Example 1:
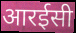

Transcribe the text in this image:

आरईसी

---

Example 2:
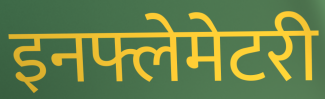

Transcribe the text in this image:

इनफ्लेमेटरी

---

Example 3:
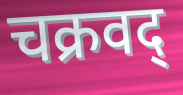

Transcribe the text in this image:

चक्रवद्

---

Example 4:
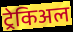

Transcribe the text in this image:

ट्रेकिअल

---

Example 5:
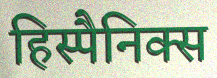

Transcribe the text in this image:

हिस्पैनिक्स